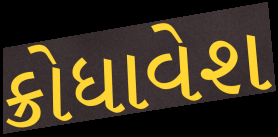
ક્રોધાવેશ